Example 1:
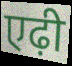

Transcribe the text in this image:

एढ़ी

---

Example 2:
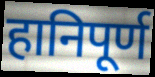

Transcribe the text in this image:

हानिपूर्ण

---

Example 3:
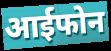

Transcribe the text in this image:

आईफोन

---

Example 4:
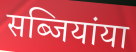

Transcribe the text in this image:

सब्जियांया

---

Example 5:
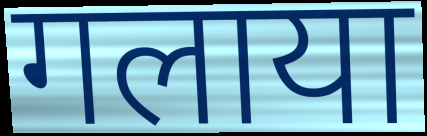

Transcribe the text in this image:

गलाया